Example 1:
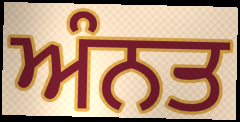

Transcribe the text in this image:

ਅੰਨਤ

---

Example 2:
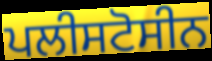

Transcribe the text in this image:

ਪਲੀਸਟੋਸੀਨ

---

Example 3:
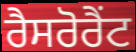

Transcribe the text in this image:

ਰੈਸਰੋਰੈਂਟ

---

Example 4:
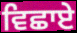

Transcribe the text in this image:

ਵਿਛਾਏ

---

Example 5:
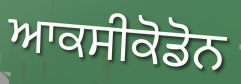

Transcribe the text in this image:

ਆਕਸੀਕੋਡੋਨ